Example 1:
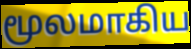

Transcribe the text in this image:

மூலமாகிய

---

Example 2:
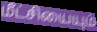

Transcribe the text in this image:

மீட்சியையும்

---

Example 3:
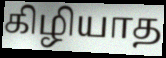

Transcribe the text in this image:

கிழியாத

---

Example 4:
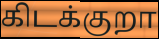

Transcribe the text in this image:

கிடக்குறா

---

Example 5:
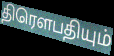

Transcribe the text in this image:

திரெளபதியும்